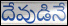
దేవుడినే